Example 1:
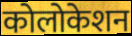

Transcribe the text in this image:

कोलोकेशन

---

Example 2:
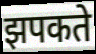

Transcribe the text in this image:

झपकते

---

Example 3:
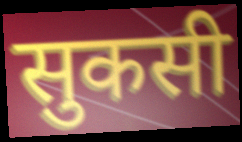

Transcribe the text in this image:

सुकसी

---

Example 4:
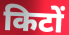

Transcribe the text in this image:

किटों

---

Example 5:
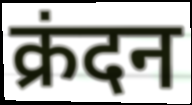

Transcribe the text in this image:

क्रंदन